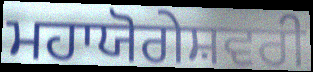
ਮਹਾਯੋਗੇਸ਼ਵਰੀ